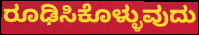
ರೂಢಿಸಿಕೊಳ್ಳುವುದು